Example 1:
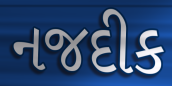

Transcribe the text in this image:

નજદીક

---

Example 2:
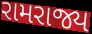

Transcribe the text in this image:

રામરાજ્ય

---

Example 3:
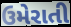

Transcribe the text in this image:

ઉમેરાતી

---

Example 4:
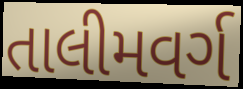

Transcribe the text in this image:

તાલીમવર્ગ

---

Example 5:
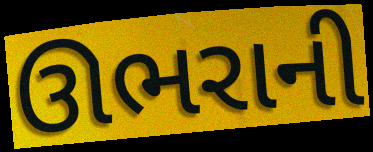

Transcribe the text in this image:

ઊભરાની